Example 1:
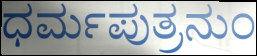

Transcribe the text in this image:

ಧರ್ಮಪುತ್ರನುಂ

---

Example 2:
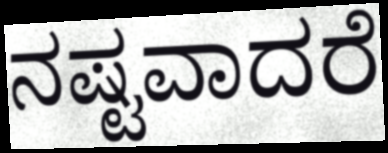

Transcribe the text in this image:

ನಷ್ಟವಾದರೆ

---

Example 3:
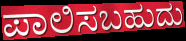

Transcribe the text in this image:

ಪಾಲಿಸಬಹುದು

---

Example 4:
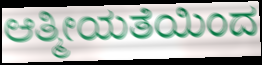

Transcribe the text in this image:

ಆತ್ಮೀಯತೆಯಿಂದ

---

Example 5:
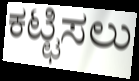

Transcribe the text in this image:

ಕಟ್ಟಿಸಲು